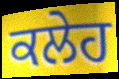
ਕਲੇਹ